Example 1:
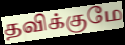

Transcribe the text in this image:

தவிக்குமே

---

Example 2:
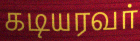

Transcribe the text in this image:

கடியரவர்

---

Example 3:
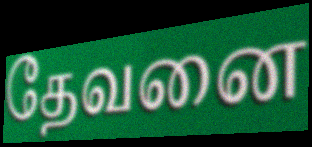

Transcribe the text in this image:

தேவனை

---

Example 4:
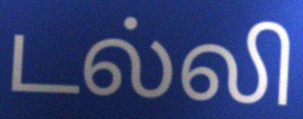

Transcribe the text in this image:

டல்லி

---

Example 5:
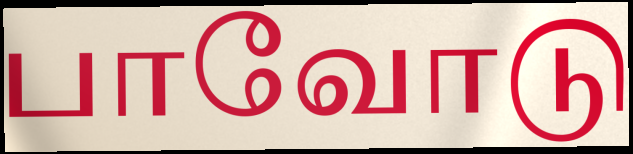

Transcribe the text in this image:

பாவோடு